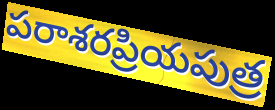
పరాశరప్రియపుత్ర